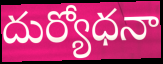
దుర్యోధనా